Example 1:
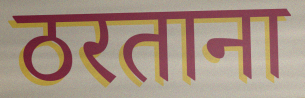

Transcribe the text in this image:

ठरताना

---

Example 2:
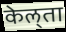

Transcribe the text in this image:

केल्ता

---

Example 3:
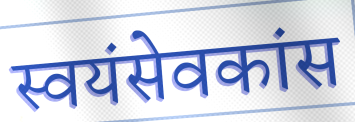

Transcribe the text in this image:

स्वयंसेवकांस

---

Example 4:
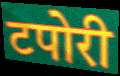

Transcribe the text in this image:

टपोरी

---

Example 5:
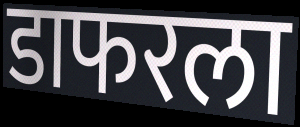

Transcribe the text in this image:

डाफरला